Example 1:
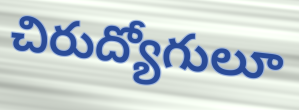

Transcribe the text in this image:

చిరుద్యోగులూ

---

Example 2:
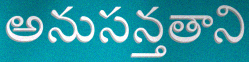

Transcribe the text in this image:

అనుసన్తతాని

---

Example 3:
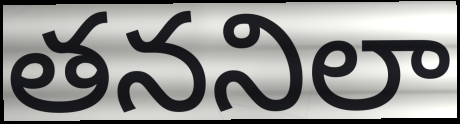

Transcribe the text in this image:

తననిలా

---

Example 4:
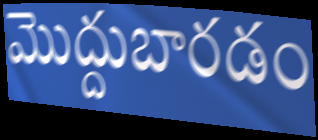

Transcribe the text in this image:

మొద్దుబారడం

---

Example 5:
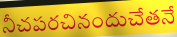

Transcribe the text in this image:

నీచపరచినందుచేతనే